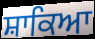
ਸ਼ਾਕਿਆ